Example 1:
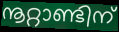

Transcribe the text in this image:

നൂറ്റാണ്ടിന്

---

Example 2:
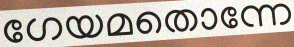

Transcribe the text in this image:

ഗേയമതൊന്നേ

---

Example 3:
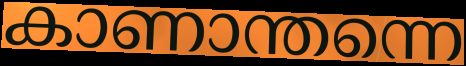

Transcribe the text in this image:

കാണാന്തന്നെ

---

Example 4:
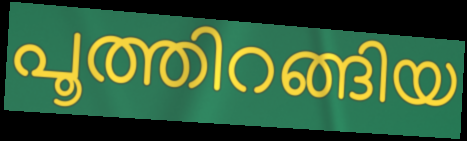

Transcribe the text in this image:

പൂത്തിറങ്ങിയ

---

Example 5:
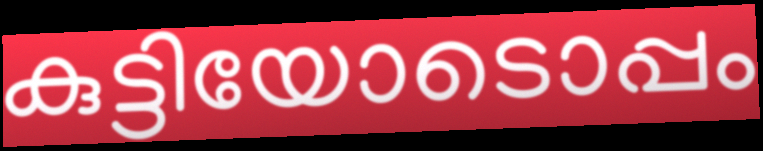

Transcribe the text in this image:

കുട്ടിയോടൊപ്പം